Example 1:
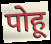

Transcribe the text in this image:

पोहू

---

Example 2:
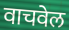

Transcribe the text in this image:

वाचवेल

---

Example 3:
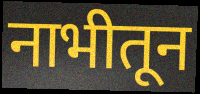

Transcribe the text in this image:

नाभीतून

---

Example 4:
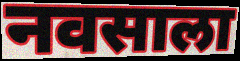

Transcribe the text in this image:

नवसाला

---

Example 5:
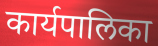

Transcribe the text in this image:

कार्यपालिका